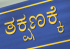
ತಕ್ಷಣಕ್ಕೆ